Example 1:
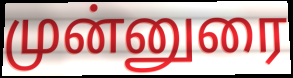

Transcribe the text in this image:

முன்னுரை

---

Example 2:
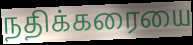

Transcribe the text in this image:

நதிக்கரையை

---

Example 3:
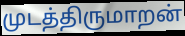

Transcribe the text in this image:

முடத்திருமாறன்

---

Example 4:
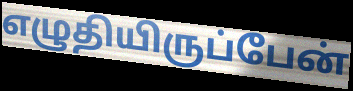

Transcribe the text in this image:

எழுதியிருப்பேன்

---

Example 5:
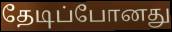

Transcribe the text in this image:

தேடிப்போனது